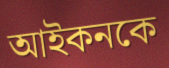
আইকনকে